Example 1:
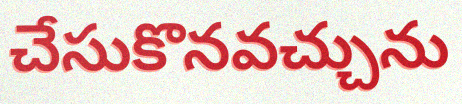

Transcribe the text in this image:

చేసుకొనవచ్చును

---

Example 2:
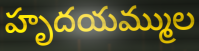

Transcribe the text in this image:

హృదయమ్ముల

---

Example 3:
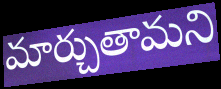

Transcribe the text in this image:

మార్చుతామని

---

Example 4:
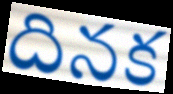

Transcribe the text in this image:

దినక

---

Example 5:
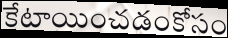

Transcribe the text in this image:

కేటాయించడంకోసం